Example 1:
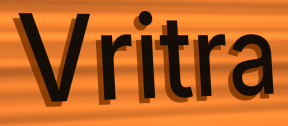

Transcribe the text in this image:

Vritra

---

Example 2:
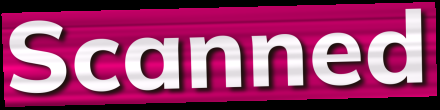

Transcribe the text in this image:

Scanned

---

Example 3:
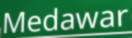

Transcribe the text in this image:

Medawar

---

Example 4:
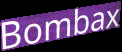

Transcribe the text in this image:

Bombax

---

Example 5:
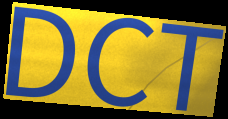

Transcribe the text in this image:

DCT